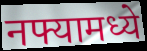
नफ्यामध्ये